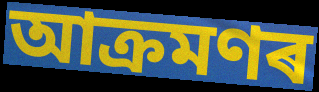
আক্ৰমণৰ